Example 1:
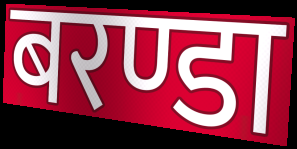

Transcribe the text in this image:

बरण्डा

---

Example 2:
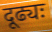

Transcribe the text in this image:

दूढ्यः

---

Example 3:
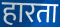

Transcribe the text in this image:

हारता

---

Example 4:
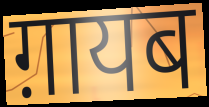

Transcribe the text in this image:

ग़ायब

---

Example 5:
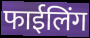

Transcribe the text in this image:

फाईलिंग